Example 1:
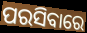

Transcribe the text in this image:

ପରସିବାରେ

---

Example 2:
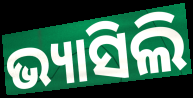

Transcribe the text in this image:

ଭ୍ୟାସିଲି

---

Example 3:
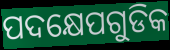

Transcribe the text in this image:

ପଦକ୍ଷେପଗୁଡିକ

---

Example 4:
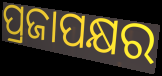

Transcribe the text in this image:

ପ୍ରଜାପକ୍ଷର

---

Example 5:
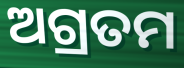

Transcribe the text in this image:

ଅଗ୍ରତମ